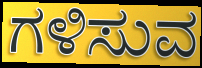
ಗಳಿಸುವ